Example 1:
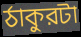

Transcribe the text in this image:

ঠাকুরটা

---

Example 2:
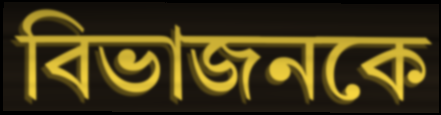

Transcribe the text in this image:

বিভাজনকে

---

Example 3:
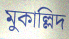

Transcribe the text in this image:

মুকাল্লিদ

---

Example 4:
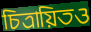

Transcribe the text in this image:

চিত্রায়িতও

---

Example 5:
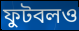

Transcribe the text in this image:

ফুটবলও